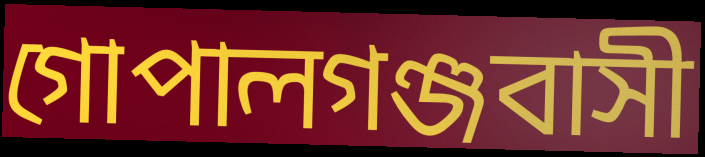
গোপালগঞ্জবাসী